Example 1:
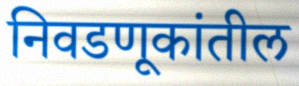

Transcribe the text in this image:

निवडणूकांतील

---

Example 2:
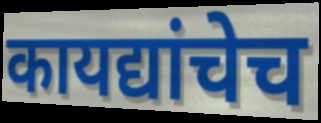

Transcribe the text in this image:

कायद्यांचेच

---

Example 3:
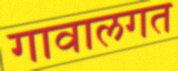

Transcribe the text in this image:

गावालगत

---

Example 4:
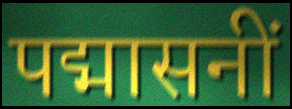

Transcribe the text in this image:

पद्मासनीं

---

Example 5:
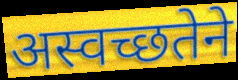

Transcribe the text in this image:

अस्वच्छतेने